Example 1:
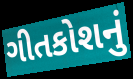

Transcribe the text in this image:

ગીતકોશનું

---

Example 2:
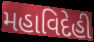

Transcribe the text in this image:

મહાવિદેહી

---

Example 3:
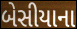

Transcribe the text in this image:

બેસીયાના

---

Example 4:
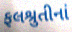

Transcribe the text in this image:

ફલશ્રુતીનાં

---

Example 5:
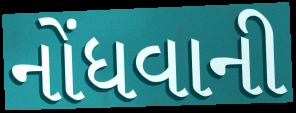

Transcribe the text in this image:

નોંધવાની